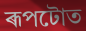
ৰূপটোত